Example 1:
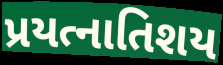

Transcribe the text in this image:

પ્રયત્નાતિશય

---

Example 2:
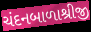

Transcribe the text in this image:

ચંદનબાળાશ્રીજી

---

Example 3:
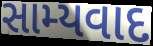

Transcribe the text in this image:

સામ્યવાદ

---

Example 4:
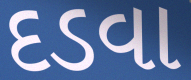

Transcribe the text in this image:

દડવા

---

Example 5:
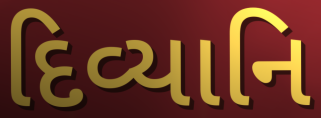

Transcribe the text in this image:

દિવ્યાનિ